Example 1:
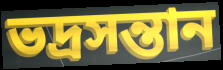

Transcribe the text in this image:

ভদ্রসন্তান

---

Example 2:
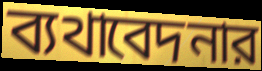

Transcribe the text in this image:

ব্যথাবেদনার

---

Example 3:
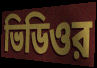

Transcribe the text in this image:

ভিডিওর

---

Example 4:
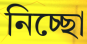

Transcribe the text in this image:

নিচ্ছো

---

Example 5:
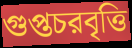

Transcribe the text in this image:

গুপ্তচরবৃত্তি